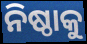
ନିଷ୍ଠାକୁ